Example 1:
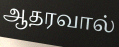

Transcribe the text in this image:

ஆதரவால்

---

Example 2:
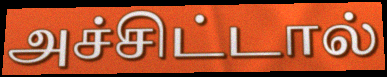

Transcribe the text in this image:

அச்சிட்டால்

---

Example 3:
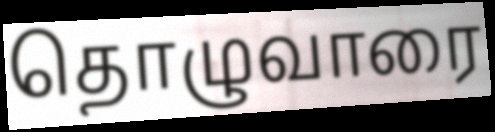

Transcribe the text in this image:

தொழுவாரை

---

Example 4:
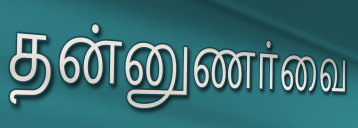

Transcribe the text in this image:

தன்னுணர்வை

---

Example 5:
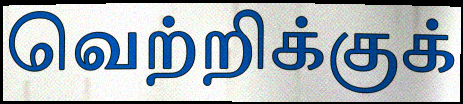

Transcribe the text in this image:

வெற்றிக்குக்